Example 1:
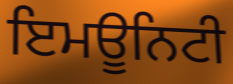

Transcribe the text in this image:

ਇਮਊਨਿਟੀ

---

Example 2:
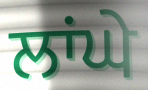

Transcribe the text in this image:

ਲਾਂਘੇ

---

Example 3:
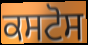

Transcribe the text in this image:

ਕਸਟੋਸ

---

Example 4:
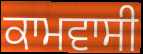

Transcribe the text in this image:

ਕਾਮਵਾਸੀ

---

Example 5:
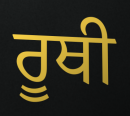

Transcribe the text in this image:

ਰੂਥੀ